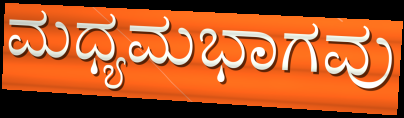
ಮಧ್ಯಮಭಾಗವು